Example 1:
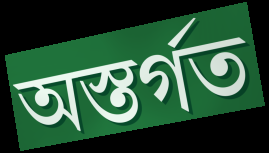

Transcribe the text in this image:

অস্তর্গত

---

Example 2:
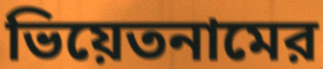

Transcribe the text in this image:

ভিয়েতনামের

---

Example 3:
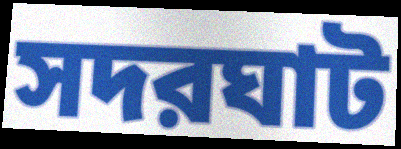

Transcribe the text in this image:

সদরঘাট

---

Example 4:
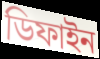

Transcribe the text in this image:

ডিফাইন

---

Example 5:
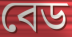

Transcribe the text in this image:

বেড